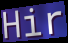
Hir